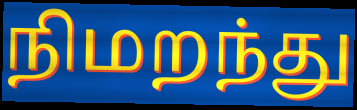
நிமறந்து